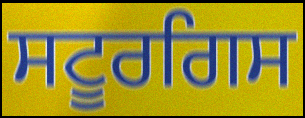
ਸਟੂਰਗਿਸ